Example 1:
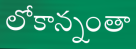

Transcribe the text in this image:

లోకాన్నంతా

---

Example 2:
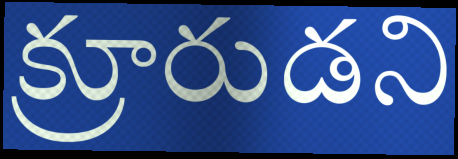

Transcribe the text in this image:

క్రూరుడని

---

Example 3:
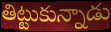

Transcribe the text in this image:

తిట్టుకున్నాడు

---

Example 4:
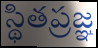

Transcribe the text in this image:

స్థితప్రజ్ఞ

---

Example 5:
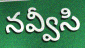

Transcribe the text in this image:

నవ్వీసి